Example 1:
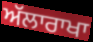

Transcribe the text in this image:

ਅੱਲਾਰਾਖਾ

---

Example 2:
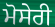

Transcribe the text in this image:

ਮੋਸੇਰੀ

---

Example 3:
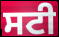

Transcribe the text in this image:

ਸਟੀ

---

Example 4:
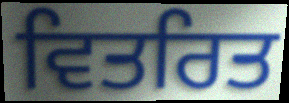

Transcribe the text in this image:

ਵਿਤਰਿਤ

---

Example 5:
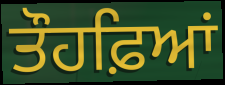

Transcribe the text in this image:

ਤੌਹਫ਼ਿਆਂ